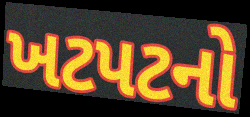
ખટપટનો